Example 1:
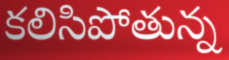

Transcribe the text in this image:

కలిసిపోతున్న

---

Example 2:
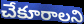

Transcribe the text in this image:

చేకూరాలని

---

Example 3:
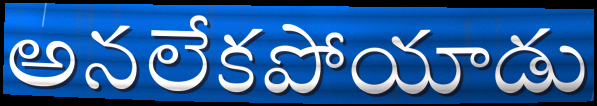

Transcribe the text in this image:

అనలేకపోయాడు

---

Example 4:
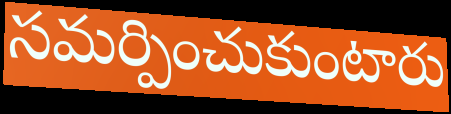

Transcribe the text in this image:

సమర్పించుకుంటారు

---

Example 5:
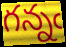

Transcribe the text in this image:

గన్నఁ